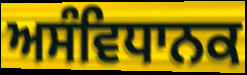
ਅਸੰਵਿਧਾਨਕ